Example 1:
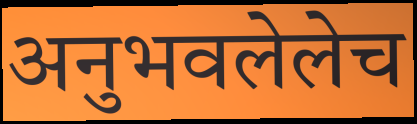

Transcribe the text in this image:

अनुभवलेलेच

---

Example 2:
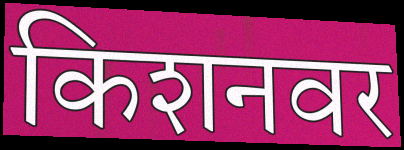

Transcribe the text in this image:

किशनवर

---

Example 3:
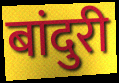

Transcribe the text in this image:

बांदुरी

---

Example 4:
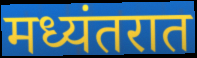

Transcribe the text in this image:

मध्यंतरात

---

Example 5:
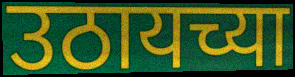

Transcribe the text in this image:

उठायच्या